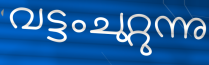
വട്ടംചുറ്റുന്നു